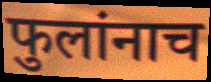
फुलांनाच